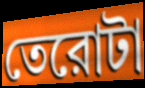
তেরোটা